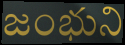
జంభుని